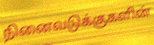
நினைவடுக்குகளின்